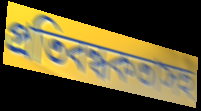
প্রতিবন্ধকতাসহ